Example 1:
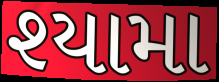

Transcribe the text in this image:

શ્યામા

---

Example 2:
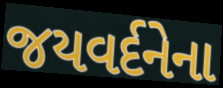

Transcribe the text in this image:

જયવર્દનેના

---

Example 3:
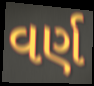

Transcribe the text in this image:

વર્ણ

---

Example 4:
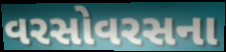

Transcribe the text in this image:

વરસોવરસના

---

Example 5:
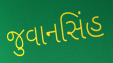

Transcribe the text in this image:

જુવાનસિંહ